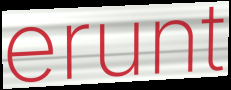
erunt